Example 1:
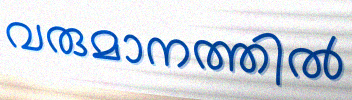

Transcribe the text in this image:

വരുമാനത്തിൽ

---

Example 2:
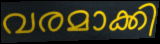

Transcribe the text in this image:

വരമാക്കി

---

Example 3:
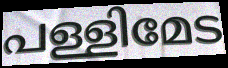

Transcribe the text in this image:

പള്ളിമേട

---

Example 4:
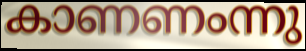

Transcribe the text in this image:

കാണണംന്നു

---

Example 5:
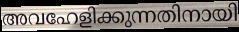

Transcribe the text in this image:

അവഹേളിക്കുന്നതിനായി